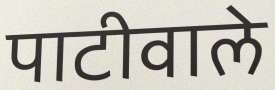
पाटीवाले